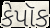
કેપૉક